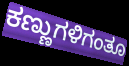
ಕಣ್ಣುಗಳಿಗಂತೂ